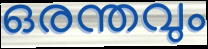
ഒരന്തവും